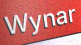
Wynar